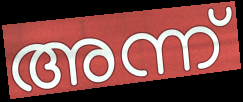
അന്ന്